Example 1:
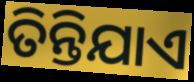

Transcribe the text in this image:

ତିନ୍ତିଯାଏ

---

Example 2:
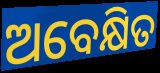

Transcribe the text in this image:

ଅବେକ୍ଷିତ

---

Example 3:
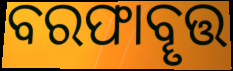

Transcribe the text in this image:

ବରଫାବୄତ୍ତ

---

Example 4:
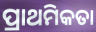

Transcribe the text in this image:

ପ୍ରାଥମିକତା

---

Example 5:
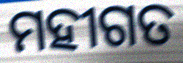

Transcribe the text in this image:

ମହୀଗତ